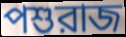
পশুরাজ